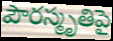
పౌరస్మృతిపై